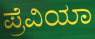
ಪ್ರೆವಿಯಾ